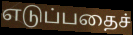
எடுப்பதைச்